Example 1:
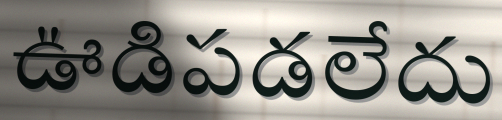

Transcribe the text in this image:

ఊడిపడలేదు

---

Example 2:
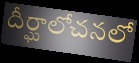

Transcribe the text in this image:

దీర్ఘాలోచనలో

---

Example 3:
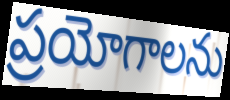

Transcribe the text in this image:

ప్రయోగాలను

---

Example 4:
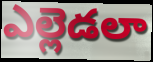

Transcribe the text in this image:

ఎల్లెడలా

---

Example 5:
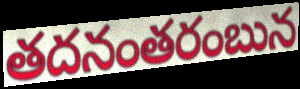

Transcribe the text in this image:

తదనంతరంబున